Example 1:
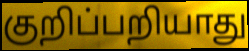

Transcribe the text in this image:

குறிப்பறியாது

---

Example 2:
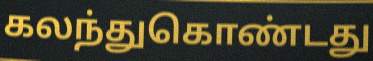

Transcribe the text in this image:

கலந்துகொண்டது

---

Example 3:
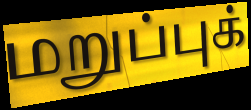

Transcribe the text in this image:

மறுப்புக்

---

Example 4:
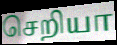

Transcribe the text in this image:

செறியா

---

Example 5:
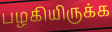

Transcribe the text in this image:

பழகியிருக்க